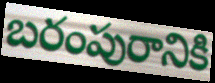
బరంపురానికి